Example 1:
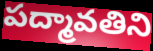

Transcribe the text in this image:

పద్మావతిని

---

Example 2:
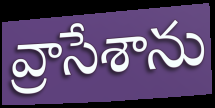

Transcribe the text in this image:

వ్రాసేశాను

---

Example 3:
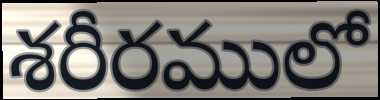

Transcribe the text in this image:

శరీరములో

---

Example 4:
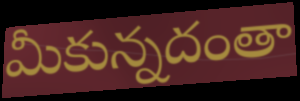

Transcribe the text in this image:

మీకున్నదంతా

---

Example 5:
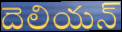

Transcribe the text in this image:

దెలియన్